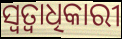
ସ୍ବତ୍ବାଧିକାରୀ